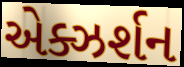
એક્ઝર્શન